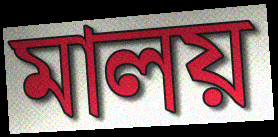
মালয়